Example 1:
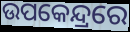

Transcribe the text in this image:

ଉପକେନ୍ଦ୍ରରେ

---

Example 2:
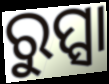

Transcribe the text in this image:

ରୁପ୍ସା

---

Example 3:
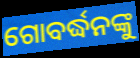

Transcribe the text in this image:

ଗୋବର୍ଦ୍ଧନଙ୍କୁ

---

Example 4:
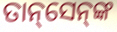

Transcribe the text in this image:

ତାନ୍‌ସେନ୍‌ଙ୍କ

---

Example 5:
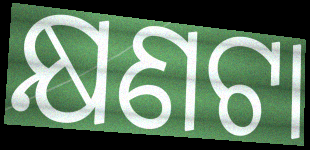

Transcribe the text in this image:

କ୍ଷଣଟା